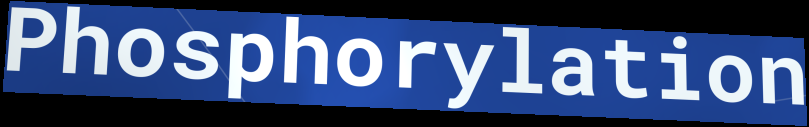
Phosphorylation